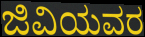
ಜಿವಿಯವರ